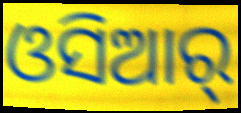
ଓସିଆର୍